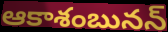
ఆకాశంబునన్